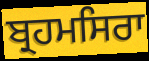
ਬ੍ਰਹਮਸਿਰਾ